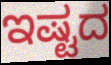
ಇಷ್ಟದ